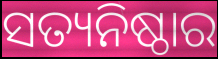
ସତ୍ୟନିଷ୍ଠାର